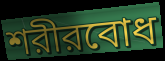
শরীরবোধ